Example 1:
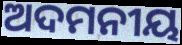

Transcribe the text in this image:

ଅଦମନୀୟ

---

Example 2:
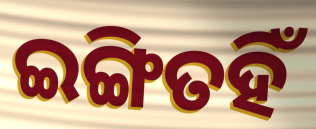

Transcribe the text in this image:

ଇଙ୍ଗିତହିଁ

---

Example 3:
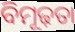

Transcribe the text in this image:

ବିମୂଢ଼ତା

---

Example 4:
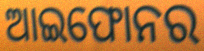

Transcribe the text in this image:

ଆଇଫୋନର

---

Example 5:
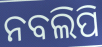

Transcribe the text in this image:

ନବଲିପି